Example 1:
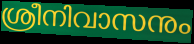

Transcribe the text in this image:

ശ്രീനിവാസനും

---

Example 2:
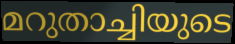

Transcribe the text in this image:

മറുതാച്ചിയുടെ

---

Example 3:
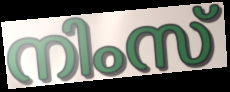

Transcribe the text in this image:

നിംസ്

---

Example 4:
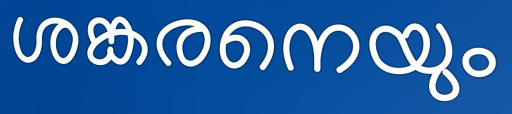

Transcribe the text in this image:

ശങ്കരനെയും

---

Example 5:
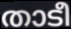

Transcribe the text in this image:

താടീ